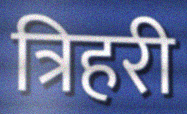
त्रिहरी